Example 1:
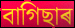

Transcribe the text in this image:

বাগিছাৰ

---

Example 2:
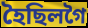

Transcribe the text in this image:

হৈছিলগৈ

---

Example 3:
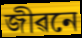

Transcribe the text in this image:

জীৱনে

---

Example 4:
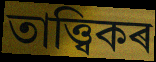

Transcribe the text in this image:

তাত্ত্বিকৰ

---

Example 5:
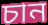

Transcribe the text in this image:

চান